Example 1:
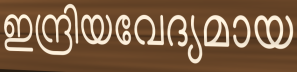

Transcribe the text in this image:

ഇന്ദ്രിയവേദ്യമായ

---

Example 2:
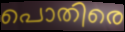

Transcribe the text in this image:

പൊതിരെ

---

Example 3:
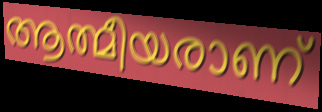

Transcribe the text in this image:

ആത്മീയരാണ്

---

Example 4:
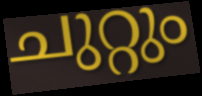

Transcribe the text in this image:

ചുറ്റും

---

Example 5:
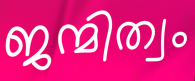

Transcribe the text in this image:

ജന്മിത്വം